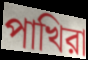
পাখিরা